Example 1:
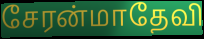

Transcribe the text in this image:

சேரன்மாதேவி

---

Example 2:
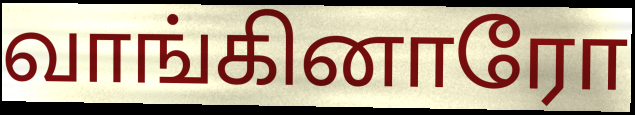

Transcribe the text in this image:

வாங்கினாரோ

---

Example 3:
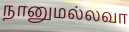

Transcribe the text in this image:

நானுமல்லவா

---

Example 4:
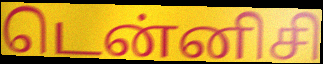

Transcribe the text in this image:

டென்னிசி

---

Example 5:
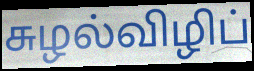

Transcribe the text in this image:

சுழல்விழிப்